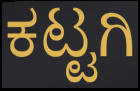
ಕಟ್ಟಗಿ